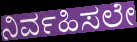
ನಿರ್ವಹಿಸಲೇ